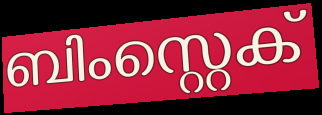
ബിംസ്റ്റെക്